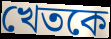
খেতকে